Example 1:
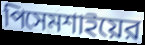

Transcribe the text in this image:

পিসেমশাইয়ের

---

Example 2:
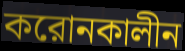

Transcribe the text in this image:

করোনকালীন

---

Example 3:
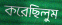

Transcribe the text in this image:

করেছিলুম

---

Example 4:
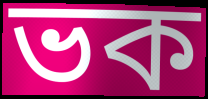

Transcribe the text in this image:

ভক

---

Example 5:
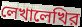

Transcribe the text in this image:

লেখালেখির